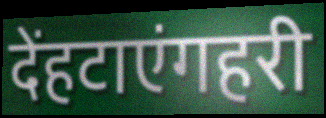
देंहटाएंगहरी